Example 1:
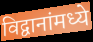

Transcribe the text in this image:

विद्वानांमध्ये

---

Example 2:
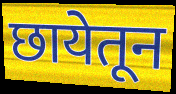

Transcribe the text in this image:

छायेतून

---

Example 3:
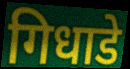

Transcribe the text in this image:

गिधाडे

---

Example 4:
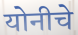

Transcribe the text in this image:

योनीचे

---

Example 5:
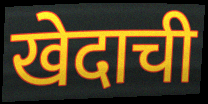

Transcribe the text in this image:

खेदाची